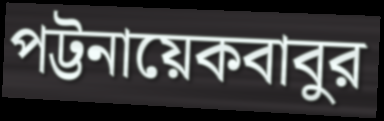
পট্টনায়েকবাবুর